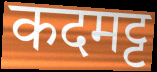
कदमट्ट